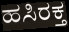
ಹಸಿರಕ್ತ